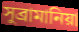
সুব্রামানিয়া